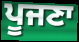
ਪੂਜਣਾ